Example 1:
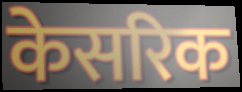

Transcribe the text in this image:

केसरिक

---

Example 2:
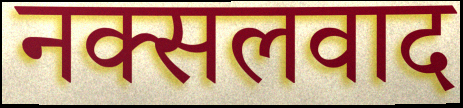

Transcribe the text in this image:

नक्सलवाद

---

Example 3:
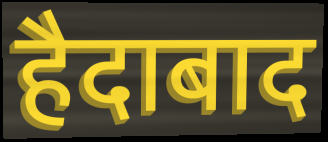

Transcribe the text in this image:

हैदाबाद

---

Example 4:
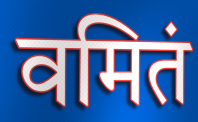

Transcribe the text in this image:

वमितं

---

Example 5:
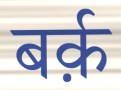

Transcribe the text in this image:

बर्क़